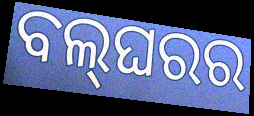
ବଲ୍‌ଘରର